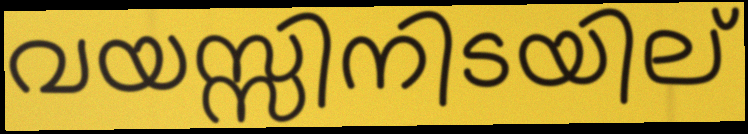
വയസ്സിനിടയില്